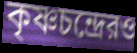
কৃষ্ণচন্দ্রেরও